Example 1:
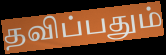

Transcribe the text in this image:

தவிப்பதும்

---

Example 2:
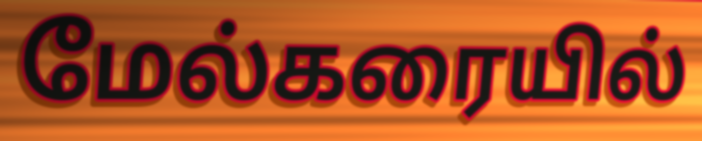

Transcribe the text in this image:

மேல்கரையில்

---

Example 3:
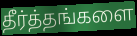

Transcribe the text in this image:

தீர்த்தங்களை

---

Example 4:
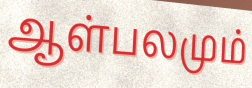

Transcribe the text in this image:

ஆள்பலமும்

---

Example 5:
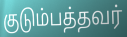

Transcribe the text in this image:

குடும்பத்தவர்